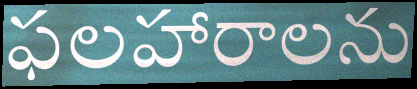
ఫలహారాలను